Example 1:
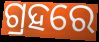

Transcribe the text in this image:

ଗ୍ରହରେ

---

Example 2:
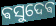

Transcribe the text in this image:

ଵସୁଦେଵ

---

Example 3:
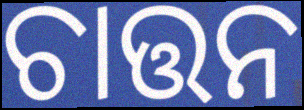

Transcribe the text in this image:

ଚାତ୍ତନ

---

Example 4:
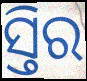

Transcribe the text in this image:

ସ୍ତିର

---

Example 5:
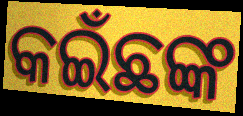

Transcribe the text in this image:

କଇଁଛଙ୍କ